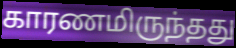
காரணமிருந்தது